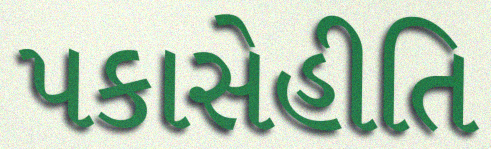
પકાસેહીતિ